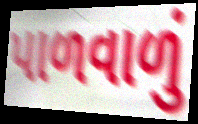
પાળવાળું